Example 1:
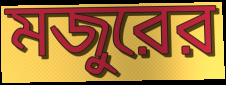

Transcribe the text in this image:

মজুরের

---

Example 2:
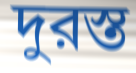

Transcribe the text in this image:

দুরস্ত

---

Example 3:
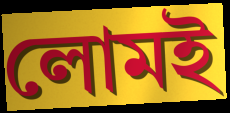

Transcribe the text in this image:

লোমই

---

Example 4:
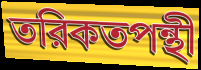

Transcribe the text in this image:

তরিকতপন্থী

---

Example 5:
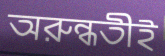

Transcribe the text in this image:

অরুন্ধতীই